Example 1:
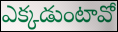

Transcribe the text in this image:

ఎక్కడుంటావో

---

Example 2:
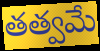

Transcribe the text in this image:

తత్వమే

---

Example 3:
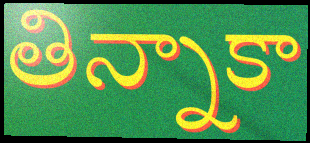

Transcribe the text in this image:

తిన్నాకా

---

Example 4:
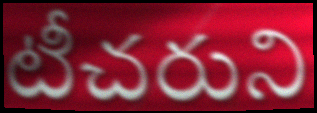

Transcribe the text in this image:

టీచరుని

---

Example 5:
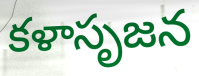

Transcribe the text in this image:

కళాసృజన